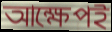
আক্ষেপই